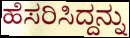
ಹೆಸರಿಸಿದ್ದನ್ನು